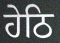
ਹੇਠਿ